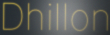
Dhillon